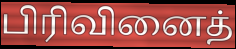
பிரிவினைத்